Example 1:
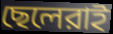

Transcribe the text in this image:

ছেলেরাই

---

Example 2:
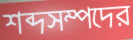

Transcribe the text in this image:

শব্দসম্পদের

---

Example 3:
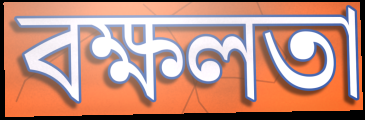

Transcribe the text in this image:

বক্ষলতা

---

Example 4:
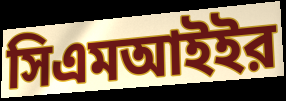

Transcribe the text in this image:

সিএমআইইর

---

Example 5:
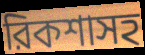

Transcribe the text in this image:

রিকশাসহ